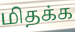
மிதக்க